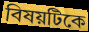
বিষয়টিকে